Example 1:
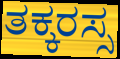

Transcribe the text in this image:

ತಕ್ಕರಸ್ಸ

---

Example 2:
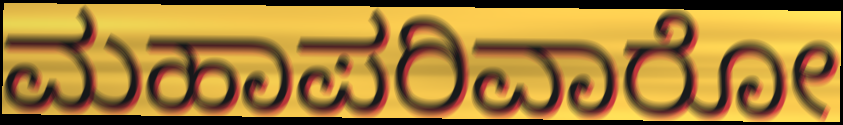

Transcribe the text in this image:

ಮಹಾಪರಿವಾರೋ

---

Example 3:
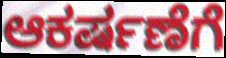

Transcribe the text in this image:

ಆಕರ್ಷಣೆಗೆ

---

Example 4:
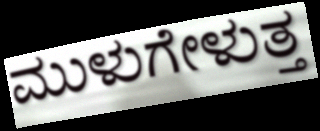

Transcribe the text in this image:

ಮುಳುಗೇಳುತ್ತ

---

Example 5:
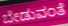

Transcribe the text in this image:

ಬೇಡುವಂತೆ